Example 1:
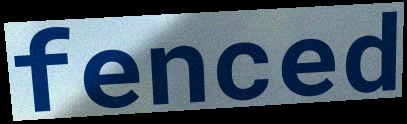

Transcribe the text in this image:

fenced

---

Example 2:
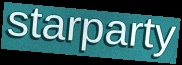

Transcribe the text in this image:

starparty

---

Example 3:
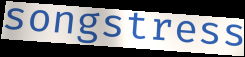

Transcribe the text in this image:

songstress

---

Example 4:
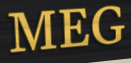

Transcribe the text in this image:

MEG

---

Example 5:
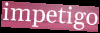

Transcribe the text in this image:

impetigo